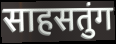
साहसतुंग